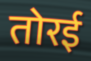
तोरई